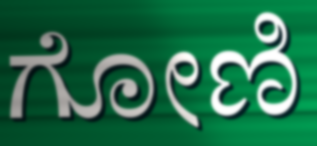
ಗೋಣಿ